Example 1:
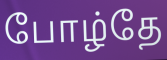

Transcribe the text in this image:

போழ்தே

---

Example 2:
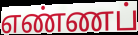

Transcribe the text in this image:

எண்ணப்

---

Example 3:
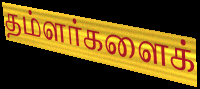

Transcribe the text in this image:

தம்ளர்களைக்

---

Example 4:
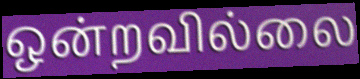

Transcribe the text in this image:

ஒன்றவில்லை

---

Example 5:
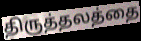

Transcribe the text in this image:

திருத்தலத்தை